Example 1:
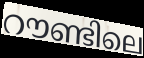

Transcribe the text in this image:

റൗണ്ടിലെ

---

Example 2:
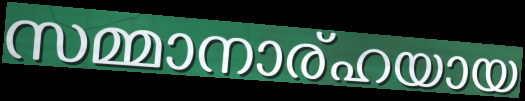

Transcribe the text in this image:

സമ്മാനാര്ഹയായ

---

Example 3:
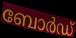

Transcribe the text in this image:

ബോർഡ്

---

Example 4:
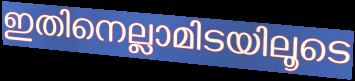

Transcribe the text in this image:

ഇതിനെല്ലാമിടയിലൂടെ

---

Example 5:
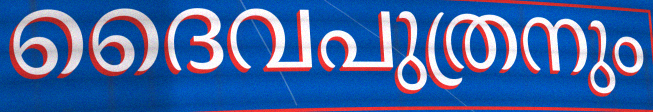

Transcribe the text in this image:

ദൈവപുത്രനും